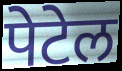
पेटेल